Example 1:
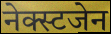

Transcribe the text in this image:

नेक्स्टजेन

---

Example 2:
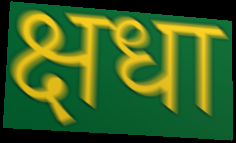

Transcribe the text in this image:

क्षधा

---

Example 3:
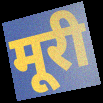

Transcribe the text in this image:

मूरी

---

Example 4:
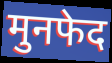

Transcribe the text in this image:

मुनफेद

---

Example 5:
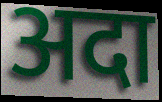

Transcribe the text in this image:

अदा